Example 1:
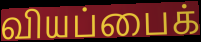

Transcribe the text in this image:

வியப்பைக்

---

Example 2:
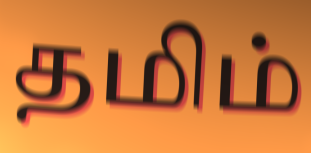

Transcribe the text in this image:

தமிம்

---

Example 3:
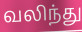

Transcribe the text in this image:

வலிந்து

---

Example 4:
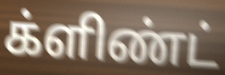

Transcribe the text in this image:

க்ளிண்ட்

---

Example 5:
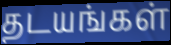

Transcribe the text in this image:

தடயங்கள்